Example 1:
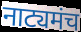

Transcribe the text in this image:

नाट्यमंच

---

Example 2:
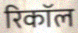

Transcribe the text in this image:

रिकॉल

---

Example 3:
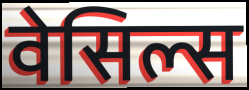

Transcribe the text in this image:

वेसिल्स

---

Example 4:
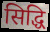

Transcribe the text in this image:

सिद्धि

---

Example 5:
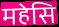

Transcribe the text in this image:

महेसि